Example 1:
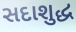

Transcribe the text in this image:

સદાશુદ્ધ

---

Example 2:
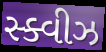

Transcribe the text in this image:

સ્ક્વીઝ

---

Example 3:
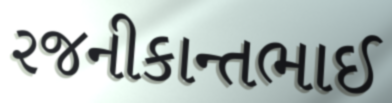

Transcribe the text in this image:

રજનીકાન્તભાઈ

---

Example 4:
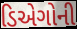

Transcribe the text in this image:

ડિએગોની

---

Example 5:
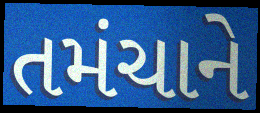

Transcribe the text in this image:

તમંચાને